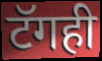
टॅगही